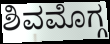
ಶಿವಮೊಗ್ಗ